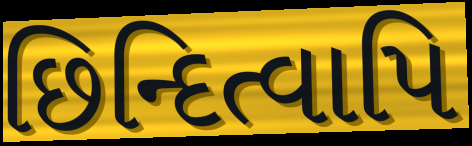
છિન્દિત્વાપિ